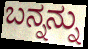
ಬನ್ನನ್ನು